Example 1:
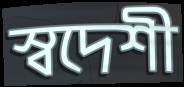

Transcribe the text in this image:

স্বদেশী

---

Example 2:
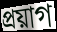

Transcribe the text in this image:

প্ৰয়াগ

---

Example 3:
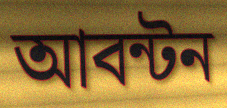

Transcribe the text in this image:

আবন্টন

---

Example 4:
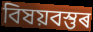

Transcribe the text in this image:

বিষয়বস্তুৰ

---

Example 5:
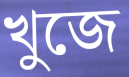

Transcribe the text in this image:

খুজে